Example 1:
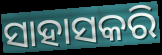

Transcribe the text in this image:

ସାହାସକରି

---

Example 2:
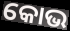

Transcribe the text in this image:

କୋଭ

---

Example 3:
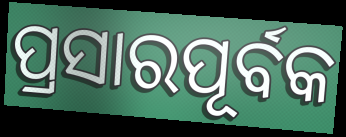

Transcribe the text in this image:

ପ୍ରସାରପୂର୍ବକ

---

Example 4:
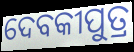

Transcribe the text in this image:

ଦେବକୀପୁତ୍ର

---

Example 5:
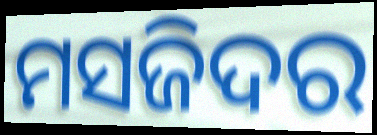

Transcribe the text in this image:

ମସଜିଦର